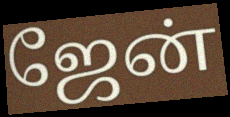
ஜேன்